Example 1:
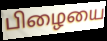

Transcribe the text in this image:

பிழையை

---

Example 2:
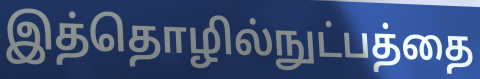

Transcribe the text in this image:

இத்தொழில்நுட்பத்தை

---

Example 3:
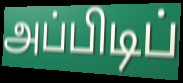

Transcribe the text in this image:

அப்பிடிப்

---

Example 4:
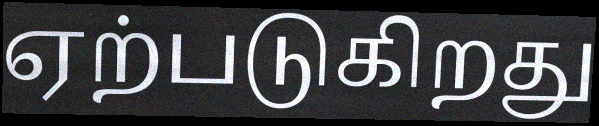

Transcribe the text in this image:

ஏற்படுகிறது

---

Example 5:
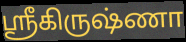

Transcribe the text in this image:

ஸ்ரீகிருஷ்ணா